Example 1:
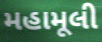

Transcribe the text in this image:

મહામૂલી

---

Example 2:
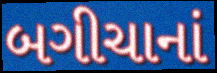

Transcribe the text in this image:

બગીચાનાં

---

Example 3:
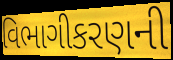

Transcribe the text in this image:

વિભાગીકરણની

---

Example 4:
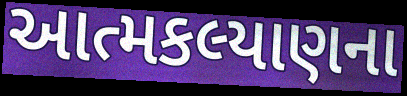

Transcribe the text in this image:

આત્મકલ્યાણના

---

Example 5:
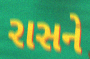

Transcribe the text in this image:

રાસને